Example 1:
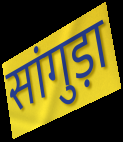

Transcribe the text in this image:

सांगुड़ा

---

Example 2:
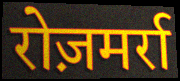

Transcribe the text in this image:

रोज़मर्रा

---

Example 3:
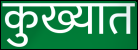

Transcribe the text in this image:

कुख्यात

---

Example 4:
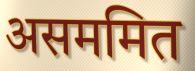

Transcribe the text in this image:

असममित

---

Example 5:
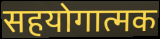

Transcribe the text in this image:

सहयोगात्मक